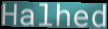
Halhed